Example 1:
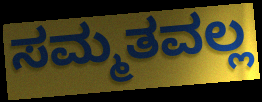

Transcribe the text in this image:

ಸಮ್ಮತವಲ್ಲ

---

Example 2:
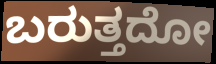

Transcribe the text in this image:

ಬರುತ್ತದೋ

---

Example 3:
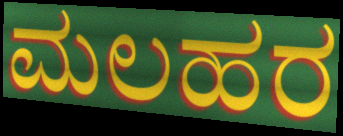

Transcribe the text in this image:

ಮಲಹರ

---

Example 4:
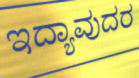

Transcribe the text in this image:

ಇದ್ಯಾವುದರ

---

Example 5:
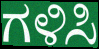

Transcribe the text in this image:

ಗಳಿಸಿ